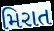
મિરાત